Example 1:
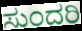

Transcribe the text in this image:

ಸುಂದರಿ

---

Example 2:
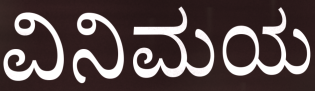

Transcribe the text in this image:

ವಿನಿಮಯ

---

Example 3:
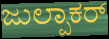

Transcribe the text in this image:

ಜುಲ್ಪಾಕರ್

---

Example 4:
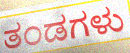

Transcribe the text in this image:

ತಂಡಗಳು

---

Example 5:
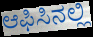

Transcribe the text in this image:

ಆಫಿಸಿನಲ್ಲಿ